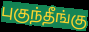
புகுந்தீங்கு